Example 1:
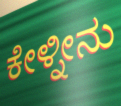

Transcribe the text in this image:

ಕೇಳ್ನೀನು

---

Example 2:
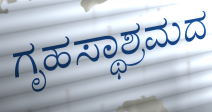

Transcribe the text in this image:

ಗೃಹಸ್ಥಾಶ್ರಮದ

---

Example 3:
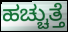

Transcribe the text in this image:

ಹಚ್ಚುತ್ತೆ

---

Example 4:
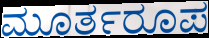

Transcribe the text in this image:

ಮೂರ್ತರೂಪ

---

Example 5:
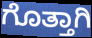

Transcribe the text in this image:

ಗೊತ್ತಾಗಿ